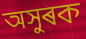
অসুৰক